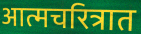
आत्मचरित्रात